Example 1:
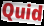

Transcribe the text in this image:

Quid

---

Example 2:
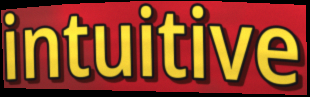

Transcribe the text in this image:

intuitive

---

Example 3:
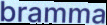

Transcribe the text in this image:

bramma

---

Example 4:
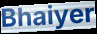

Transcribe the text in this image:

Bhaiyer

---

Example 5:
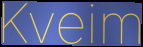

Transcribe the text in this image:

Kveim